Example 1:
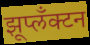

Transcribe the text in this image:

झूप्लँक्टन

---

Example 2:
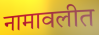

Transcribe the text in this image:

नामावलीत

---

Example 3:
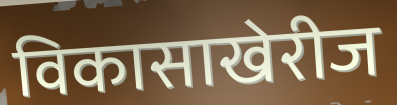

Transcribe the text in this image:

विकासाखेरीज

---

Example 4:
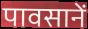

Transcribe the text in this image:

पावसानें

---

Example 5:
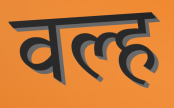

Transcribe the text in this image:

वल्ह